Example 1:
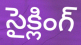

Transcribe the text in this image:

సైక్లింగ్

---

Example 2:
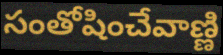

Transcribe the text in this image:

సంతోషించేవాణ్ణి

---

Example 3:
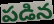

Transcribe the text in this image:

పడిన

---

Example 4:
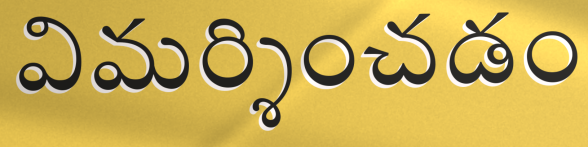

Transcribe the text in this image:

విమర్శించడం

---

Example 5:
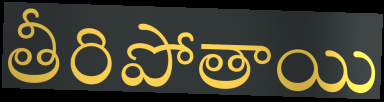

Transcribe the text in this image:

తీరిపోతాయి